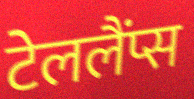
टेललैंप्स